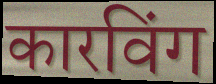
कारविंग